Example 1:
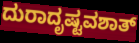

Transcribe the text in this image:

ದುರಾದೃಷ್ಟವಶಾತ್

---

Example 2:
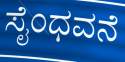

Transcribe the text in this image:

ಸೈಂಧವನೆ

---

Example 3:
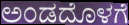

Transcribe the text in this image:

ಅಂಡದೊಳಗೆ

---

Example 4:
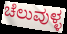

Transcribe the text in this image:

ಚೆಲುವುಳ್ಳ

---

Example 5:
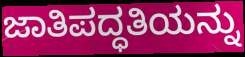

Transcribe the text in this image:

ಜಾತಿಪದ್ಧತಿಯನ್ನು